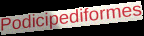
Podicipediformes